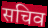
सचिव